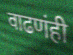
वाढणंही